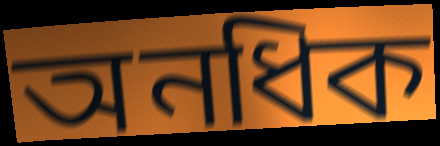
অনধিক